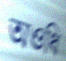
অওধি